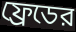
ফ্রেডের